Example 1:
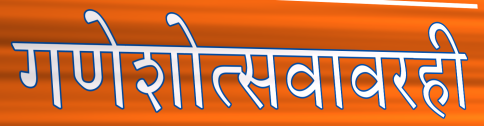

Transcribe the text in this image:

गणेशोत्सवावरही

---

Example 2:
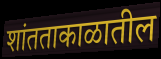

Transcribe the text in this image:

शांतताकाळातील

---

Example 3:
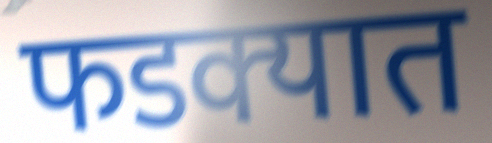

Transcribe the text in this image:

फडक्यात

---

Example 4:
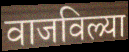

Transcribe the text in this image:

वाजविल्या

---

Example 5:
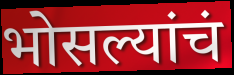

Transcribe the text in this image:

भोसल्यांचं